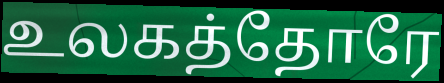
உலகத்தோரே